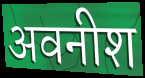
अवनीश